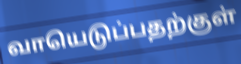
வாயெடுப்பதற்குள்